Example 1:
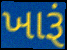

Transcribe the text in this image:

ખારૂં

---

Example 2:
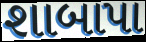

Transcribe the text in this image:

શાબાપા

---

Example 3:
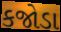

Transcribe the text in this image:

કજોડા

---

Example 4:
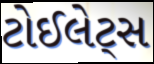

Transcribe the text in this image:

ટોઈલેટ્સ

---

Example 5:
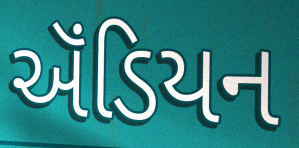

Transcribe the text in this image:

ઍંડિયન